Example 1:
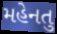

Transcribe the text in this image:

મહેનતુ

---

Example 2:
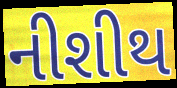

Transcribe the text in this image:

નીશીથ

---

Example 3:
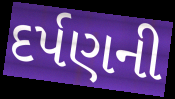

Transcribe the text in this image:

દર્પણની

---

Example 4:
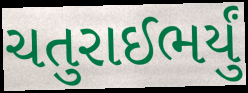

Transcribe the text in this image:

ચતુરાઈભર્યું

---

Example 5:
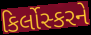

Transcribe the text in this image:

કિર્લોસ્કરને